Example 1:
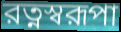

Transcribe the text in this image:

রত্নস্বরূপা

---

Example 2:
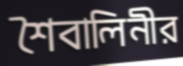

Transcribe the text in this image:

শৈবালিনীর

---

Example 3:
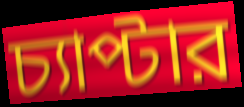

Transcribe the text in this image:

চ্যাপ্টার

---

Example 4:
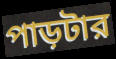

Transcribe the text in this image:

পাড়টার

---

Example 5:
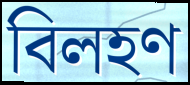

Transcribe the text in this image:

বিলহণ